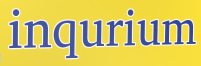
inqurium